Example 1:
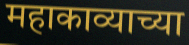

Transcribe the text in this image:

महाकाव्याच्या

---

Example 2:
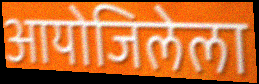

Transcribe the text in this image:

आयोजिलेला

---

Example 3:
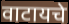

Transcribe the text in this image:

वाटायचे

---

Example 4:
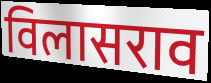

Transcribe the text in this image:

विलासराव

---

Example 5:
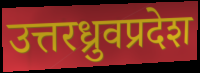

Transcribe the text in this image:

उत्तरध्रुवप्रदेश